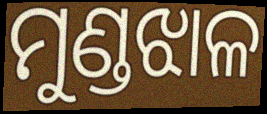
ମୁଣ୍ଡଝାଳ